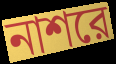
নাশরে